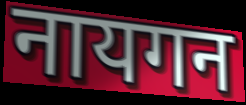
नायगन